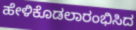
ಹೇಳಿಕೊಡಲಾರಂಭಿಸಿದ